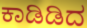
ಕಾಡಿಡಿದ